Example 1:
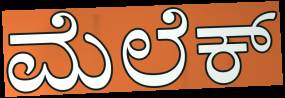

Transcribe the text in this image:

ಮೆಲೆಕ್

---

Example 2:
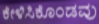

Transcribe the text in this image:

ಕೇಳಿಸಿಕೊಂಡವು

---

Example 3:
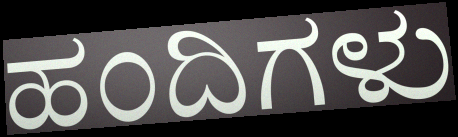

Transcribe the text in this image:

ಹಂದಿಗಳು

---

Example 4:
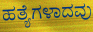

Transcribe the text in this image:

ಹತ್ಯೆಗಳಾದವು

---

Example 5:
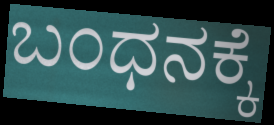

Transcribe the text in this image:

ಬಂಧನಕ್ಕೆ